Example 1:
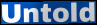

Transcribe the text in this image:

Untold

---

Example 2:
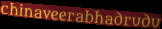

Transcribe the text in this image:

chinaveerabhadrudu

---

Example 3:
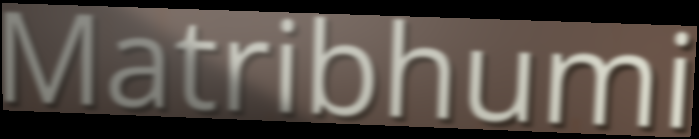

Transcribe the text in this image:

Matribhumi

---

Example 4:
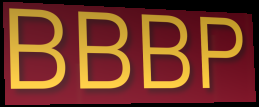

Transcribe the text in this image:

BBBP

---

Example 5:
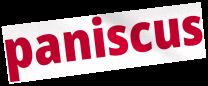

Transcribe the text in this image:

paniscus